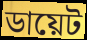
ডায়েট